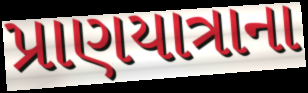
પ્રાણયાત્રાના